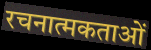
रचनात्मकताओं